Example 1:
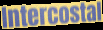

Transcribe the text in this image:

Intercostal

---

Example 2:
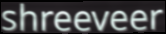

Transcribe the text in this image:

shreeveer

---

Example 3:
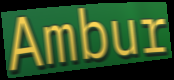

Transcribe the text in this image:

Ambur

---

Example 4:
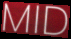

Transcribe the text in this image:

MID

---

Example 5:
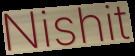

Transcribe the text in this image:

Nishit